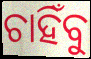
ଚାହିଁବୁ